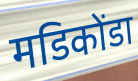
मडिकोंडा